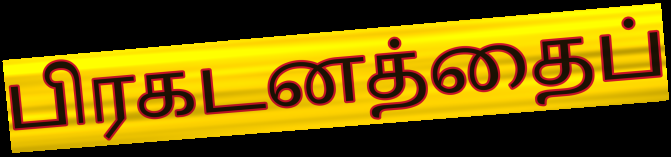
பிரகடனத்தைப்